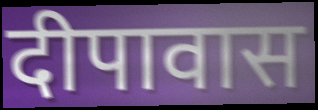
दीपावास